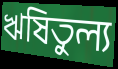
ঋষিতুল্য